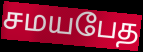
சமயபேத